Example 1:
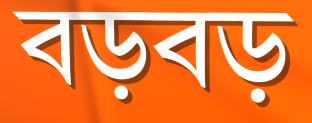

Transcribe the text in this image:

বড়বড়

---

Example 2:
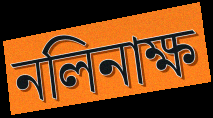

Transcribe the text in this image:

নলিনাক্ষ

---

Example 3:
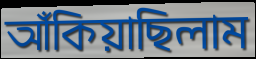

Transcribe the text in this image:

আঁকিয়াছিলাম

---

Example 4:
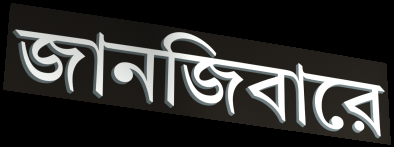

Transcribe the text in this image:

জানজিবারে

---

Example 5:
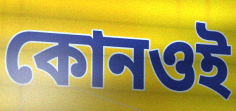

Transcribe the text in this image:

কোনওই